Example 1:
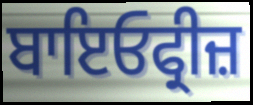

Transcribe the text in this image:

ਬਾਇਓਫ੍ਰੀਜ਼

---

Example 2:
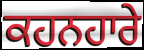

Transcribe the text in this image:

ਕਹਨਹਾਰੇ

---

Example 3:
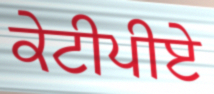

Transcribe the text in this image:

ਕੇਟੀਪੀਏ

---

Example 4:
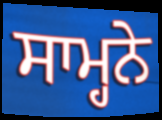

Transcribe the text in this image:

ਸਾਮ੍ਹਨੇ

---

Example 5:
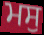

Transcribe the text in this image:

ਮਸੁ